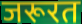
जरूरत